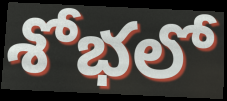
శోభలో